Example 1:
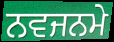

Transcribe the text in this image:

ਨਵਜਨਮੇ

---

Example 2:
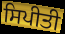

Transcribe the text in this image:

ਸਿਪੀਤੀ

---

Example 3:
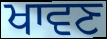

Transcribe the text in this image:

ਖਾਵਣ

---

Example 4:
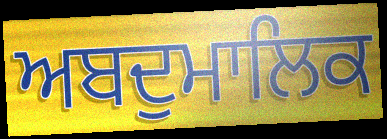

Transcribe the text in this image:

ਅਬਦੁਮਾਲਿਕ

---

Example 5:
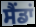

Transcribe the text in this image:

ਸੈਂਡਾਂ